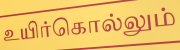
உயிர்கொல்லும்